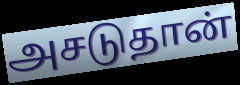
அசடுதான்